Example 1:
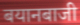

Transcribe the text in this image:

बयानबाजी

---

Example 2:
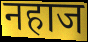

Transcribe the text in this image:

नहाज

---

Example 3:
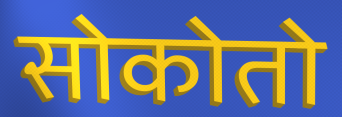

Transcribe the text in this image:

सोकोतो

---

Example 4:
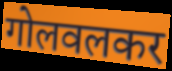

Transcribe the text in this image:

गोलवलकर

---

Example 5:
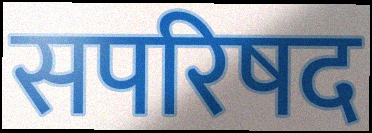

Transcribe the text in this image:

सपरिषद